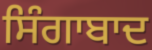
ਸਿੰਗਾਬਾਦ